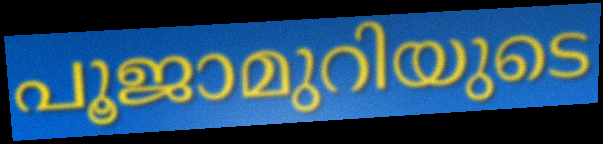
പൂജാമുറിയുടെ